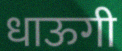
धाऊगी